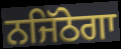
ਨਜਿੱਠੇਗਾ